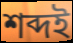
শব্দই